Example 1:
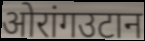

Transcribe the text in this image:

ओरांगउटान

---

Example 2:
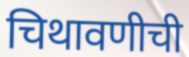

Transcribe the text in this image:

चिथावणीची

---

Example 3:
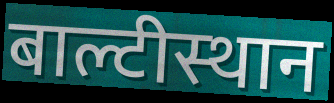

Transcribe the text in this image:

बाल्टीस्थान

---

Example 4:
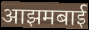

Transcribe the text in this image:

आझमबाई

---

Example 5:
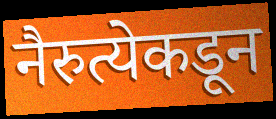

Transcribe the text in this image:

नैरुत्येकडून